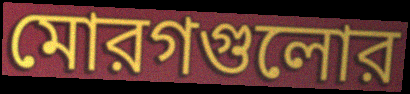
মোরগগুলোর